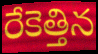
రేకెత్తిన